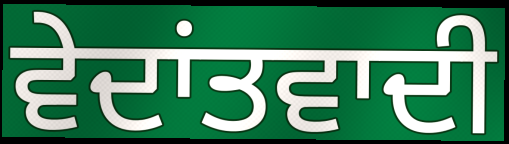
ਵੇਦਾਂਤਵਾਦੀ